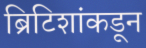
ब्रिटिशांकडून